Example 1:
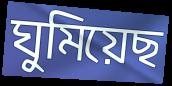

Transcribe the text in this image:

ঘুমিয়েছ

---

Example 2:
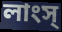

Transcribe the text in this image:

লাংস্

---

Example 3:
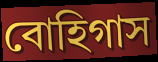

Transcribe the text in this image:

বোহিগাস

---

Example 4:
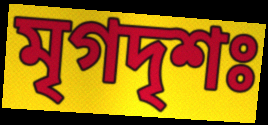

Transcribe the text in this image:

মৃগদৃশঃ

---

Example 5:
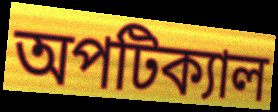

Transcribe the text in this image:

অপটিক্যাল